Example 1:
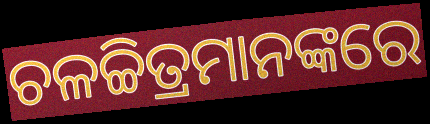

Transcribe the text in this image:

ଚଳଚ୍ଚିତ୍ରମାନଙ୍କରେ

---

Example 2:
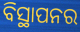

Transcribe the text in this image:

ବିସ୍ଥାପନର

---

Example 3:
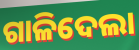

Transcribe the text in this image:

ଗାଳିଦେଲା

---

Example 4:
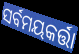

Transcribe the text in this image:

ସର୍ବମୟକର୍ତ୍ତା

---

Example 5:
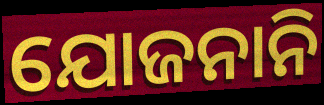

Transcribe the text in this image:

ଯୋଜନାନି